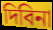
দিবিনা